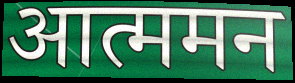
आत्ममन